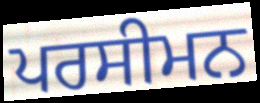
ਪਰਸੀਮਨ